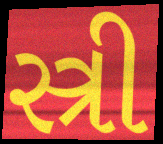
સ્ત્રી